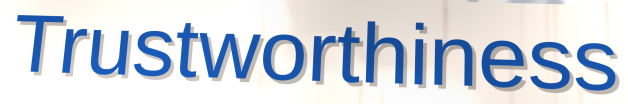
Trustworthiness